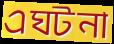
এঘটনা